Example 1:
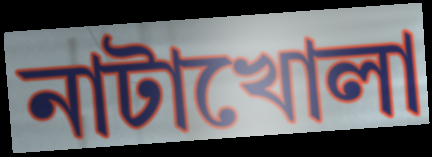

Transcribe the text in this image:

নাটাখোলা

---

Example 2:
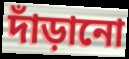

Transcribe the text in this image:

দাঁড়ানো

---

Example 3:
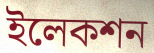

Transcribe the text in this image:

ইলেকশন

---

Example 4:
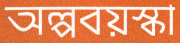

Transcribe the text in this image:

অল্পবয়স্কা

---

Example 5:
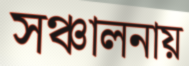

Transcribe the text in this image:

সঞ্চালনায়